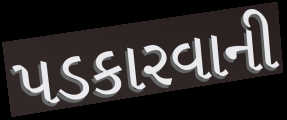
પડકારવાની